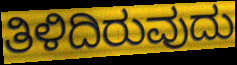
ತಿಳಿದಿರುವುದು